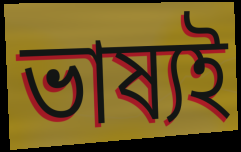
ভাষ্যই